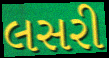
લસરી